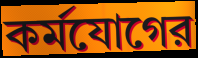
কর্মযোগের